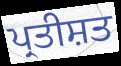
ਪ੍ਰਤੀਸ਼ਤ